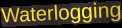
Waterlogging